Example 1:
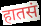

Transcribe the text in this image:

हातसं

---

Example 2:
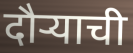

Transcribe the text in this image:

दौर्‍याची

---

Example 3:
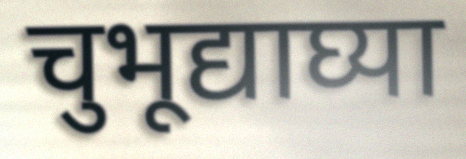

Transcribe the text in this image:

चुभूद्याघ्या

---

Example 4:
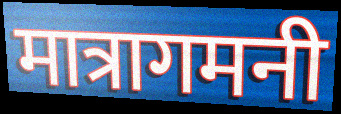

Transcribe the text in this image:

मात्रागमनी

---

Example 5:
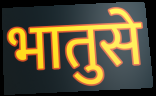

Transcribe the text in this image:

भातुसे